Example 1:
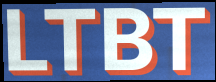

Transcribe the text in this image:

LTBT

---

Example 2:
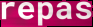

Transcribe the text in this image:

repas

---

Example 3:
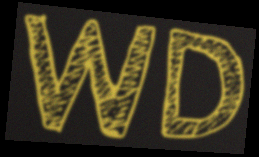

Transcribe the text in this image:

WD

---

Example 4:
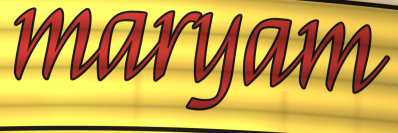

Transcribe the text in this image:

maryam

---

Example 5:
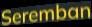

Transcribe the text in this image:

Seremban